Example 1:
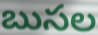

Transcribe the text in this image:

బుసల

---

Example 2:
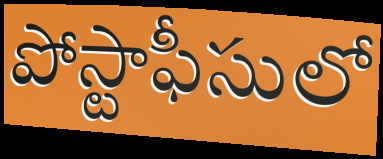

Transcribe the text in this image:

పోస్టాఫీసులో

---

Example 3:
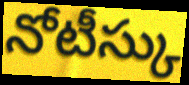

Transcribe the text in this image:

నోటీస్కు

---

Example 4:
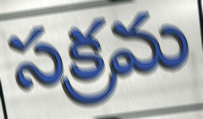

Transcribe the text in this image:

సక్రమ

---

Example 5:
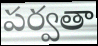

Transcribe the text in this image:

పర్వతా